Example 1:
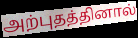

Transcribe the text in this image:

அற்புதத்தினால்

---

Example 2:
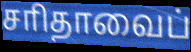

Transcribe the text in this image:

சரிதாவைப்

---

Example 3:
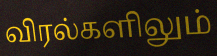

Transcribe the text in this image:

விரல்களிலும்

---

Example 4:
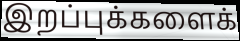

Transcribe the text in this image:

இறப்புக்களைக்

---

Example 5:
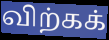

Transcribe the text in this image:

விற்கக்